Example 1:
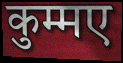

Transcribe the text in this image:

कुम्मए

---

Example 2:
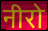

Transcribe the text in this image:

नीरो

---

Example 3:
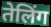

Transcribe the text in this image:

तेलिंग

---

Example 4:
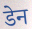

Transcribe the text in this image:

डेन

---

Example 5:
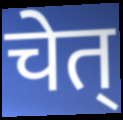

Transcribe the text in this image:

चेत्